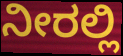
ನೀರಲ್ಲಿ